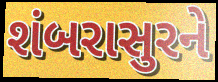
શંબરાસુરને